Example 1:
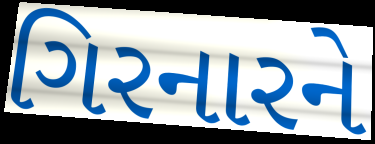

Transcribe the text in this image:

ગિરનારને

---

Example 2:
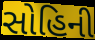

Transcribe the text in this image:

સોહિની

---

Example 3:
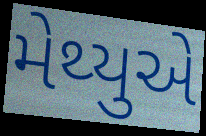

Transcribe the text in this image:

મેથ્યુએ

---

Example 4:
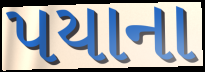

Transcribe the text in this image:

પયાના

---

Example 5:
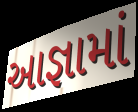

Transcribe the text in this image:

આજ્ઞામાં